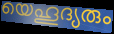
യെഹൂദ്യരും